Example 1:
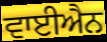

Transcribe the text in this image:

ਵਾਈਐਨ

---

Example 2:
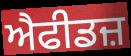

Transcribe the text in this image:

ਐਫੀਡਜ਼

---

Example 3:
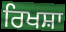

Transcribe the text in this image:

ਰਿਖਸ਼ਾ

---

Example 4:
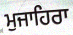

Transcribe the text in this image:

ਮੁਜਾਹਿਰਾ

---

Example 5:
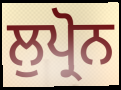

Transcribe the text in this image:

ਲੁਪ੍ਰੋਨ